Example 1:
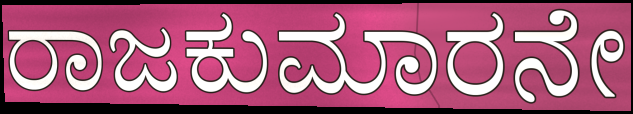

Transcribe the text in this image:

ರಾಜಕುಮಾರನೇ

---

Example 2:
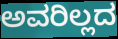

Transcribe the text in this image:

ಅವರಿಲ್ಲದ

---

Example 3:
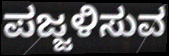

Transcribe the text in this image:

ಪಜ್ಜಳಿಸುವ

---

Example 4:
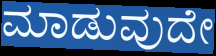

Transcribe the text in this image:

ಮಾಡುವುದೇ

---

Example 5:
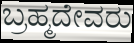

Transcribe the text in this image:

ಬ್ರಹ್ಮದೇವರು